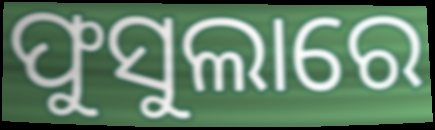
ଫୁସୁଲାରେ